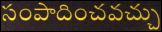
సంపాదించవచ్చు